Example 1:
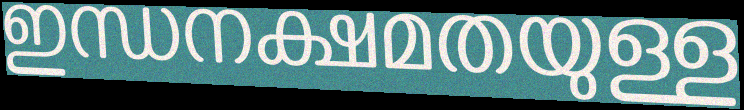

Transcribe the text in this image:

ഇന്ധനക്ഷമതയുള്ള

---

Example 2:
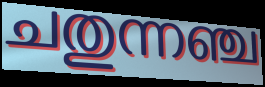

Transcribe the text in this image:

ചതുന്നഞ്ച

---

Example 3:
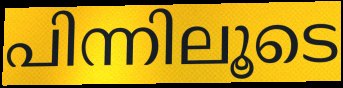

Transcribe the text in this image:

പിന്നിലൂടെ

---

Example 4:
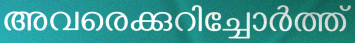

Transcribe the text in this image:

അവരെക്കുറിച്ചോർത്ത്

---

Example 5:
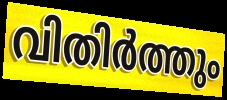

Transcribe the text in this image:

വിതിർത്തും